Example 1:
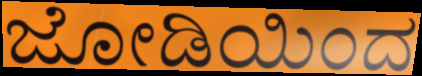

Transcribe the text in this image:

ಜೋಡಿಯಿಂದ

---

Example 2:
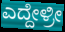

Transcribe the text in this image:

ಎದ್ದೇಳ್ರೀ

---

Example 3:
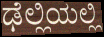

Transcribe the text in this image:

ಢೆಲ್ಲಿಯಲ್ಲಿ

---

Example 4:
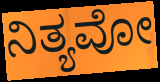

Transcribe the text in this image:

ನಿತ್ಯವೋ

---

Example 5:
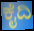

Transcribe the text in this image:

ಕೈದಿ